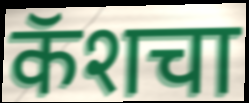
कॅशचा